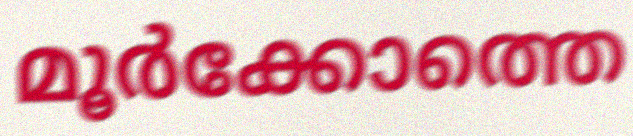
മൂർക്കോത്തെ